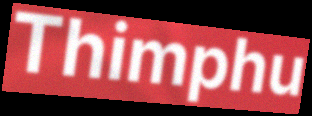
Thimphu